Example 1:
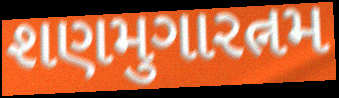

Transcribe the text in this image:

શણમુગારત્નમ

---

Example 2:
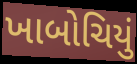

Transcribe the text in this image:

ખાબોચિયું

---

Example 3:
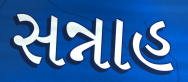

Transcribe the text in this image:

સન્નાહ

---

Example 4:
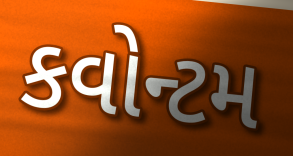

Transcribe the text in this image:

કવોન્ટમ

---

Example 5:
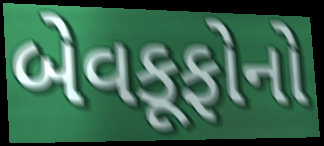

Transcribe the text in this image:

બેવકૂફોનો